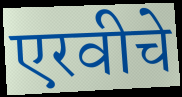
एरवीचे